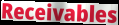
Receivables